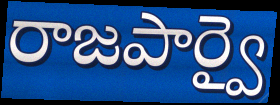
రాజపార్వై